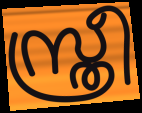
സ്ത്രീ